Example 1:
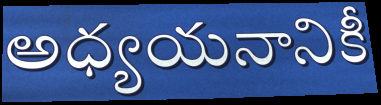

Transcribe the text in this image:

అధ్యయనానికీ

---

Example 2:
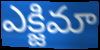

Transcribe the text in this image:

ఎక్జిమా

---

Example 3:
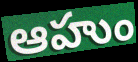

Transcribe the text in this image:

ఆహుం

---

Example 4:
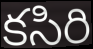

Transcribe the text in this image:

కసిరి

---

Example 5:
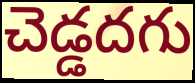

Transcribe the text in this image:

చెడ్డదగు